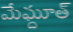
మేఘ్దూత్